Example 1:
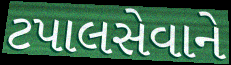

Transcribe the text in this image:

ટપાલસેવાને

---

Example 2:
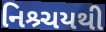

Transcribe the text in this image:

નિશ્ર્ચયથી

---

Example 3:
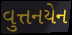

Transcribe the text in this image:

વુત્તનયેન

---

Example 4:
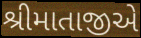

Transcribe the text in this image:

શ્રીમાતાજીએ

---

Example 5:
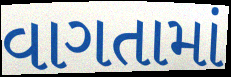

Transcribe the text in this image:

વાગતામાં